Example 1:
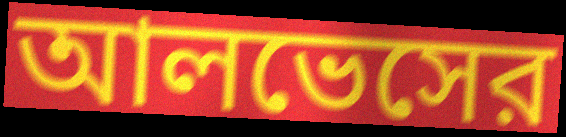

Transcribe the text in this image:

আলভেসের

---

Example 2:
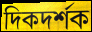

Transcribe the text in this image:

দিকদর্শক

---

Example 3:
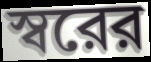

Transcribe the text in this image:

স্বরের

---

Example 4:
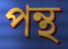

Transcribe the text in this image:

পন্থ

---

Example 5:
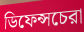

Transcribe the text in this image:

ডিফেন্সচেরা